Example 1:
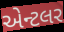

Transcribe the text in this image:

એન્ટલર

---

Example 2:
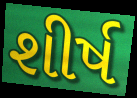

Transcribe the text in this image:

શીર્ષ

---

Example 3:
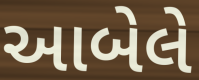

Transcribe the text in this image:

આબેલે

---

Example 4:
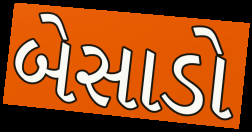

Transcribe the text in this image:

બેસાડો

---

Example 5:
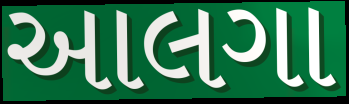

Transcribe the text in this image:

આલગા